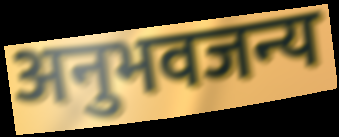
अनुभवजन्य